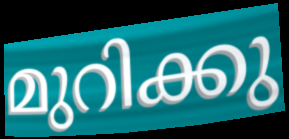
മുറിക്കു